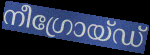
നീഗ്രോയ്ഡ്